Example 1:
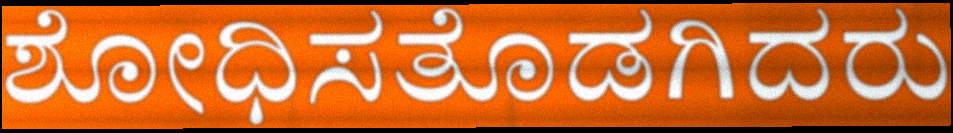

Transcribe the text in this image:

ಶೋಧಿಸತೊಡಗಿದರು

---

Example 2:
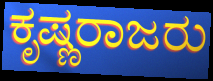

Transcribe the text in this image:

ಕೃಷ್ಣರಾಜರು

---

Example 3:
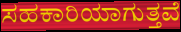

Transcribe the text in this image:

ಸಹಕಾರಿಯಾಗುತ್ತವೆ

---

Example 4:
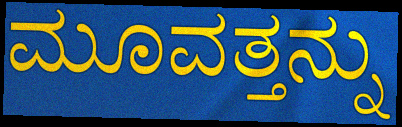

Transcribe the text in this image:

ಮೂವತ್ತನ್ನು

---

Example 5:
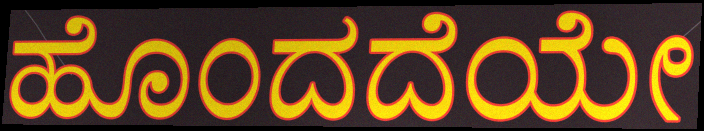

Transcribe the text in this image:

ಹೊಂದದೆಯೇ